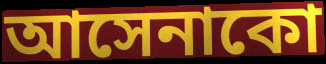
আসেনাকো